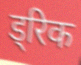
ड्रिक